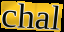
chal